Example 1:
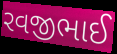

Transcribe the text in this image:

રવજીભાઈ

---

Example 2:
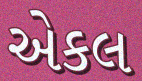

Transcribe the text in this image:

એકલ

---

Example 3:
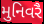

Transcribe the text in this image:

મુનિવરૈ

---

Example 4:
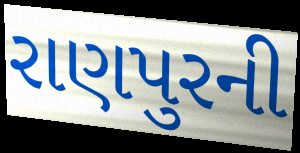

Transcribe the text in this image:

રાણપુરની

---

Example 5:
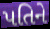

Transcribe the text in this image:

પતિને